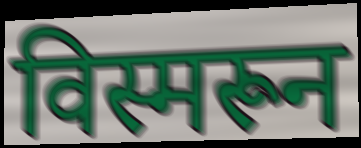
विस्मरून